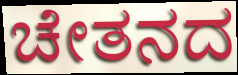
ಚೇತನದ